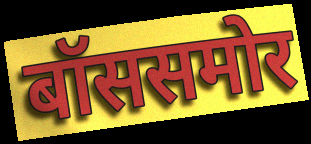
बॉससमोर